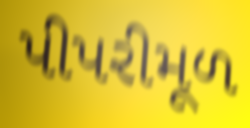
પીપરીમૂળ